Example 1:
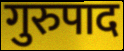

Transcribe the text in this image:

गुरुपाद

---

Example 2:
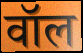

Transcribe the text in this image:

वॉल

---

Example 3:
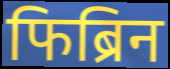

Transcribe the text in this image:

फिब्रिन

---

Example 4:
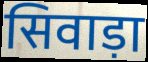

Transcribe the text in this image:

सिवाड़ा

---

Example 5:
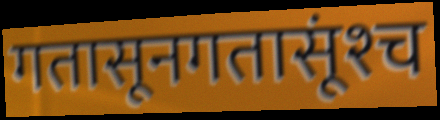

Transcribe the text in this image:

गतासूनगतासूंश्च